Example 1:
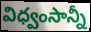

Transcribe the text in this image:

విధ్వంసాన్నీ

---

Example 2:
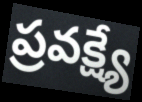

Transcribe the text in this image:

ప్రవక్ష్యే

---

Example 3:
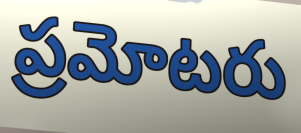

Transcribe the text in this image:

ప్రమోటరు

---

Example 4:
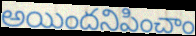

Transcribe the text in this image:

అయిందనిపించాం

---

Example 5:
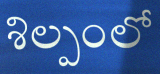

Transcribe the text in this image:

శిల్పంలో